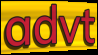
advt